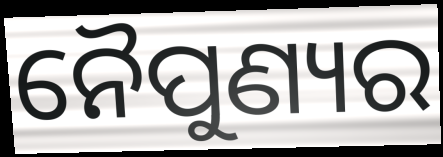
ନୈପୁଣ୍ୟର